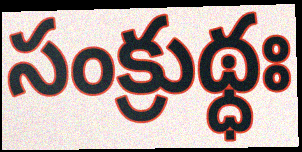
సంక్రుథ్ధః